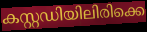
കസ്റ്റഡിയിലിരിക്കെ